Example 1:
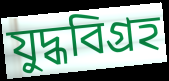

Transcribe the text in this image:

যুদ্ধবিগ্রহ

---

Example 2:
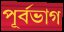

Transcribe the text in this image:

পূর্বভাগ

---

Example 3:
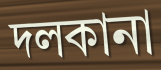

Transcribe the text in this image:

দলকানা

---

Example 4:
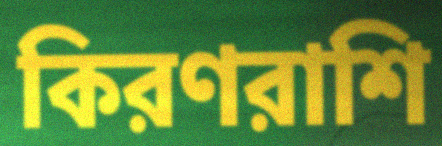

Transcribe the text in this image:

কিরণরাশি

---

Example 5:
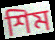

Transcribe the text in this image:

শিম